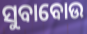
ସୁବାବୋଉ